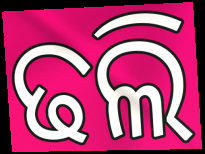
ଢଲି